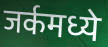
जर्कमध्ये